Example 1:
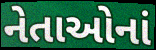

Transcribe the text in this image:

નેતાઓનાં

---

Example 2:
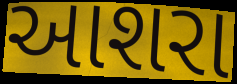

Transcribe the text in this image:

આશરા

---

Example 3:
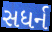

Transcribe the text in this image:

સધર્ન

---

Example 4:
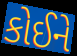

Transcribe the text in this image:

કોઈને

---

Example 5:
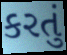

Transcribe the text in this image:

કરતું